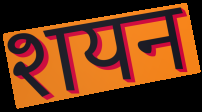
शयन